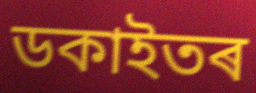
ডকাইতৰ